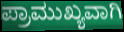
ಪ್ರಾಮುಖ್ಯವಾಗಿ